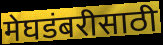
मेघडंबरीसाठी